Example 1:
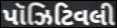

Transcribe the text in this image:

પૉઝિટિવલી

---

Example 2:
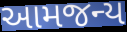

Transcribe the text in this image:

આમજન્ય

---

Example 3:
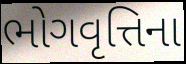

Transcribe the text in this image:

ભોગવૃત્તિના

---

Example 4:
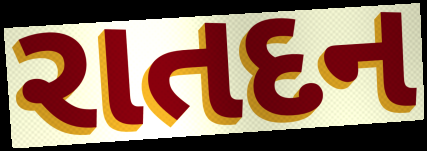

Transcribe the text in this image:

રાતદન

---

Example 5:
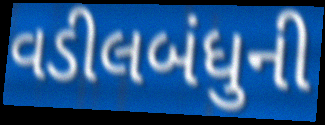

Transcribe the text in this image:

વડીલબંધુની